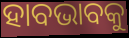
ହାବଭାବକୁ